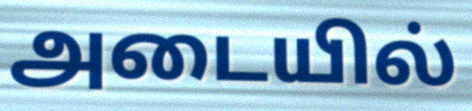
அடையில்